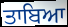
ਤਾਬਿਆ